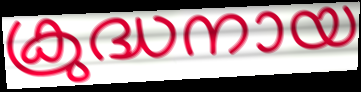
ക്രുദ്ധനായ